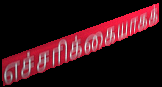
எச்சரிக்கையாகக்